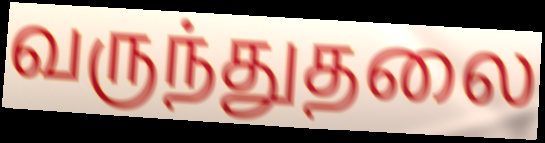
வருந்துதலை